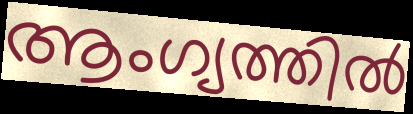
ആംഗ്യത്തിൽ